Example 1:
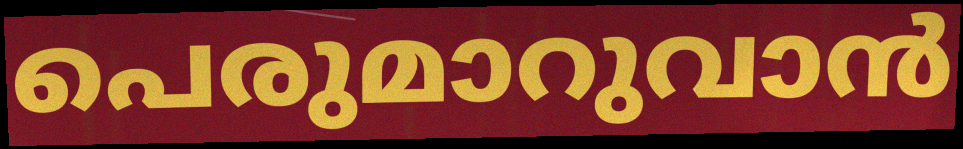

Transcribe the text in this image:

പെരുമാറുവാൻ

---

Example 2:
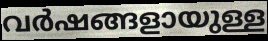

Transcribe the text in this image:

വർഷങ്ങളായുള്ള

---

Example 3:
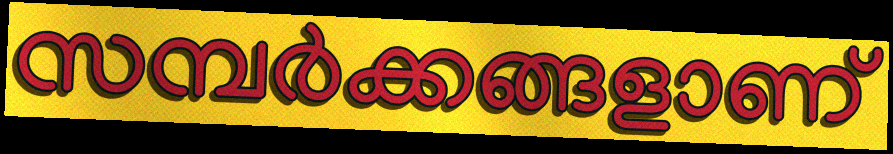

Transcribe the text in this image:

സമ്പർക്കങ്ങളാണ്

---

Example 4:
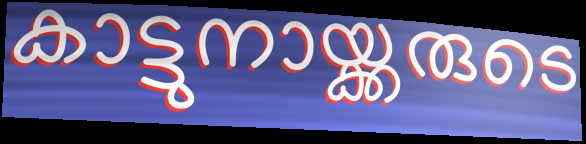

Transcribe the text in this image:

കാട്ടുനായ്ക്കരുടെ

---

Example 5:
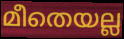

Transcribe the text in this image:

മീതെയല്ല